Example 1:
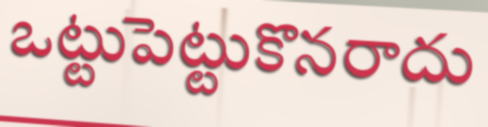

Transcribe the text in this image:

ఒట్టుపెట్టుకొనరాదు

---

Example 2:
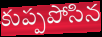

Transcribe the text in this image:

కుప్పపోసిన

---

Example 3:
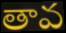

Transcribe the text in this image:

తావ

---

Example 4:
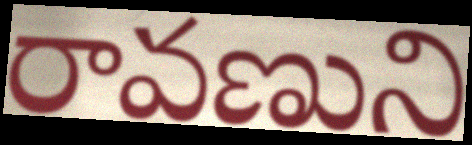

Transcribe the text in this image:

రావణుని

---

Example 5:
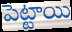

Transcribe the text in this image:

పెట్టాయి